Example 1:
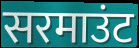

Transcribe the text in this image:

सरमाउंट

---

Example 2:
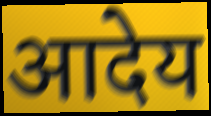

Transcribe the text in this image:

आदेय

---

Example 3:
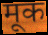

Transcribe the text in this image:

मूक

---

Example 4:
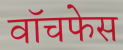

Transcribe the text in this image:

वॉचफेस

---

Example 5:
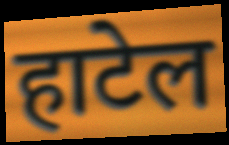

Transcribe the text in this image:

हाटेल